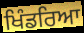
ਖਿੰਡਰਿਆ